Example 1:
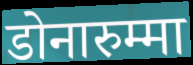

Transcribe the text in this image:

डोनारुम्मा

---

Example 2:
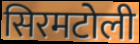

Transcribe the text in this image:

सिरमटोली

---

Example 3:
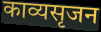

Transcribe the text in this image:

काव्यसृजन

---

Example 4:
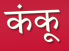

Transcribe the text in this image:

कंकू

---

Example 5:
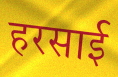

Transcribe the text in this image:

हरसाई